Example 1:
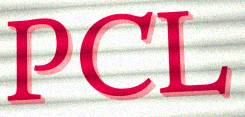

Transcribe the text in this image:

PCL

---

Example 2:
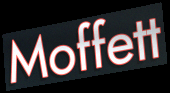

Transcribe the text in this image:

Moffett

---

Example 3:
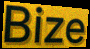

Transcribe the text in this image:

Bize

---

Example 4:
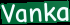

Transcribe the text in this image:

Vanka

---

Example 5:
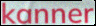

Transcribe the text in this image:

kanner